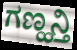
ಗಣ್ಹನ್ತಿ